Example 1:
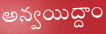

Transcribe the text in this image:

అన్వయిద్దాం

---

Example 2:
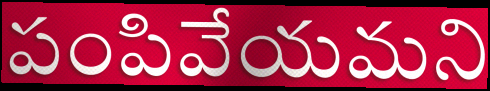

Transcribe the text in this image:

పంపివేయమని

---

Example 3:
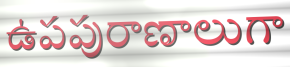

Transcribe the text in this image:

ఉపపురాణాలుగా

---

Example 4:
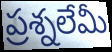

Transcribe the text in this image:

ప్రశ్నలేమీ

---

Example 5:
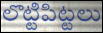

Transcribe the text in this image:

లొట్టిపిట్టలు